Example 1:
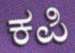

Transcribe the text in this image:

ಕಪಿ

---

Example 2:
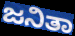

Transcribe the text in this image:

ಜನಿತಾ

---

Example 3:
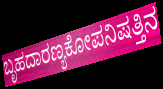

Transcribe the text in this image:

ಬೃಹದಾರಣ್ಯಕೋಪನಿಷತ್ತಿನ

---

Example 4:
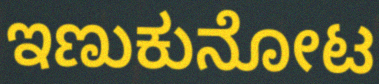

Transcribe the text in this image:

ಇಣುಕುನೋಟ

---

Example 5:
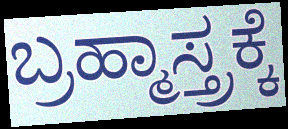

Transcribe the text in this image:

ಬ್ರಹ್ಮಾಸ್ತ್ರಕ್ಕೆ